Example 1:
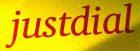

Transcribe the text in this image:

justdial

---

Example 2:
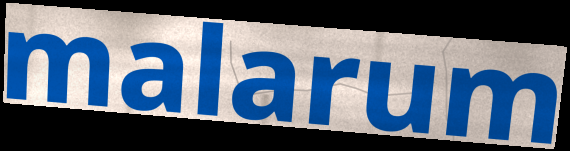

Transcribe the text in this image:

malarum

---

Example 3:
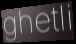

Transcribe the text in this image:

ghetli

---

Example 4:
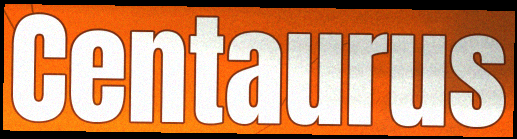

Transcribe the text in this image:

Centaurus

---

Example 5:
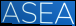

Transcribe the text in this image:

ASEA